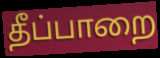
தீப்பாறை